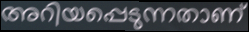
അറിയപ്പെടുന്നതാണ്